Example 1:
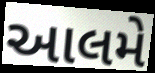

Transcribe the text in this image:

આલમે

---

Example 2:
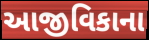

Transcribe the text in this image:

આજીવિકાના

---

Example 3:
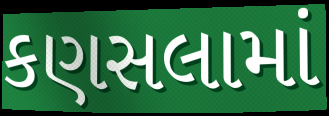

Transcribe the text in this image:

કણસલામાં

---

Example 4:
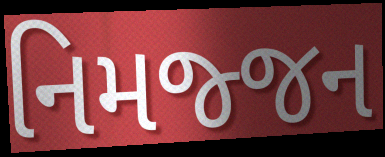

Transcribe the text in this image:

નિમજ્જન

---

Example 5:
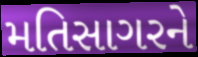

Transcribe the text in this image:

મતિસાગરને